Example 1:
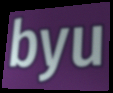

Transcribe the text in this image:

byu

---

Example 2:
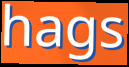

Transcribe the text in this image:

hags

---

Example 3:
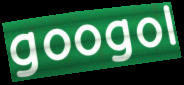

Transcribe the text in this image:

googol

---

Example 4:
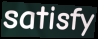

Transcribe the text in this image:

satisfy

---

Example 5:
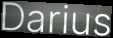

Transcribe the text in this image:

Darius